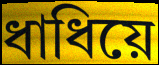
ধাধিয়ে